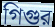
গিগুর